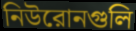
নিউরোনগুলি